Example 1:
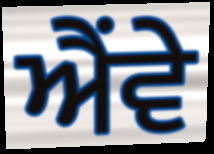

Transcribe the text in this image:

ਐਂਵੇ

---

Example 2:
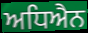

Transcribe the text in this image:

ਅਧਿਐਨ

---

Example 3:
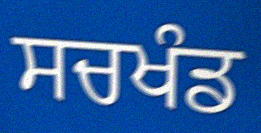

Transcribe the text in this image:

ਸਚਖੰਡ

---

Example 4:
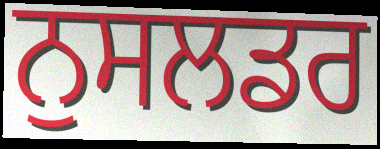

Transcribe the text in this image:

ਨੁਸਲਡਰ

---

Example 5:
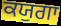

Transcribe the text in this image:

ਕਯੁਗਾ